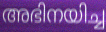
അഭിനയിച്ച